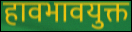
हावभावयुक्त